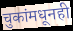
चुकांमधूनही